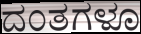
ದಂತಗಳೂ